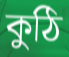
কুঠি